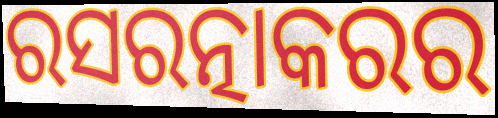
ରସରତ୍ନାକରର